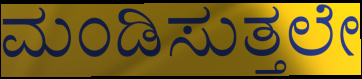
ಮಂಡಿಸುತ್ತಲೇ